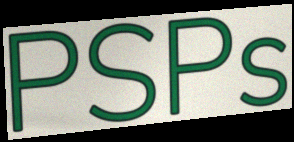
PSPs